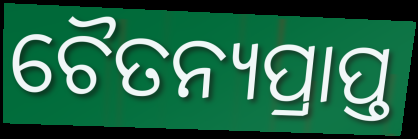
ଚୈତନ୍ୟପ୍ରାପ୍ତ